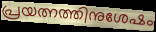
പ്രയത്നത്തിനുശേഷം